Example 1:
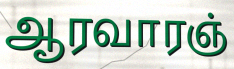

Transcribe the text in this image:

ஆரவாரஞ்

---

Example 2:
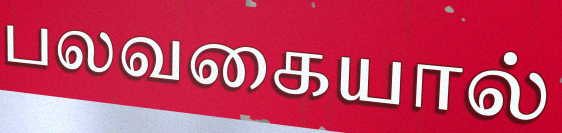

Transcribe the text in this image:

பலவகையால்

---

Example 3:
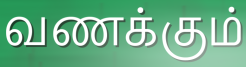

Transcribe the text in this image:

வணக்கும்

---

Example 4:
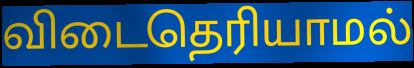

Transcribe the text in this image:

விடைதெரியாமல்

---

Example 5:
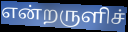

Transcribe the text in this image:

என்றருளிச்